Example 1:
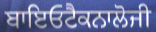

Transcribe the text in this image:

ਬਾਇਓਟੈਕਨਾਲੋਜੀ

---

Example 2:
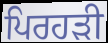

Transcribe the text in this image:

ਪਿਰਹੜੀ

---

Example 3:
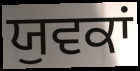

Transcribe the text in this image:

ਯੁਵਕਾਂ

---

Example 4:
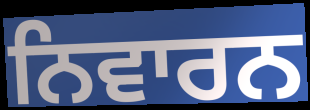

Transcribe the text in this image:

ਨਿਵਾਰਨ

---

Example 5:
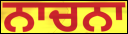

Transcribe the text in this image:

ਨਾਚਨਾ